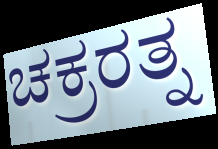
ಚಕ್ರರತ್ನ